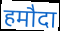
हमौदा